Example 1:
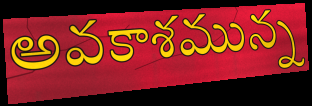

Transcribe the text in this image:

అవకాశమున్న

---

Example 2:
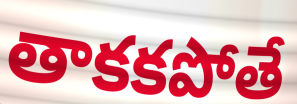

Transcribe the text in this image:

తాకకపోతే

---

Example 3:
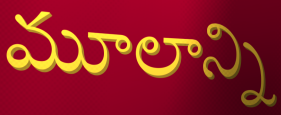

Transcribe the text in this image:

మూలాన్ని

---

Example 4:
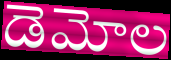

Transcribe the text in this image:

డెమోల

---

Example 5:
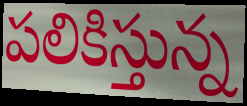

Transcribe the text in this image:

పలికిస్తున్న